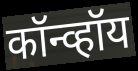
कॉन्व्हॉय